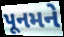
પૂનમને